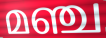
മഞ്ച